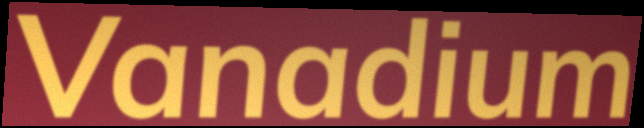
Vanadium